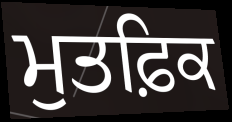
ਮੁਤਫ਼ਿਕ